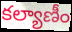
కల్యాణీం